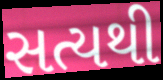
સત્યથી